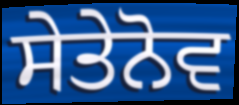
ਸੇਤੇਨੋਵ